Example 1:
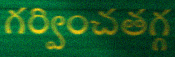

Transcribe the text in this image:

గర్వించతగ్గ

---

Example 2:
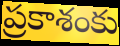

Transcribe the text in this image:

ప్రకాశంకు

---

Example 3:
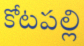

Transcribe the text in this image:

కోటపల్లి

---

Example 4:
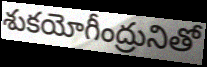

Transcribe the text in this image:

శుకయోగీంద్రునితో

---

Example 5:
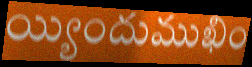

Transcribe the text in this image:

య్యిందుముఖిం